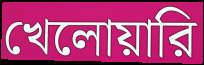
খেলোয়ারি